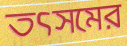
তৎসমের